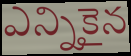
ఎన్నికైన